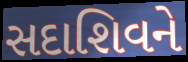
સદાશિવને